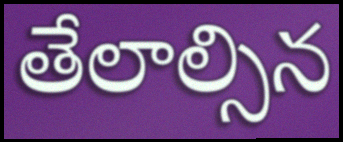
తేలాల్సిన